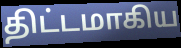
திட்டமாகிய